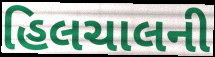
હિલચાલની